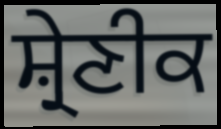
ਸ਼੍ਰੇਣੀਕ